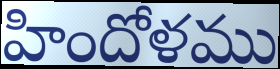
హిందోళము